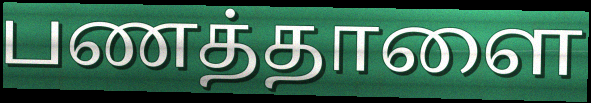
பணத்தாளை